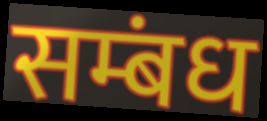
सम्बंध